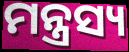
ମନ୍ତ୍ରସ୍ୟ